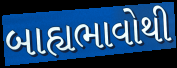
બાહ્યભાવોથી